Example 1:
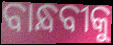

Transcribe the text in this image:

ବାନ୍ଧବୀକୁ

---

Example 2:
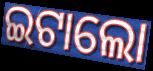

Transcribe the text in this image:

ଇଟାଲୋ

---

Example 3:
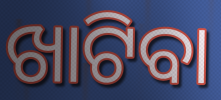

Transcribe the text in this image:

ଖାଟିବା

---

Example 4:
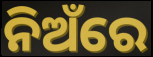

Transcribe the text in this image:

ନିଅଁରେ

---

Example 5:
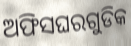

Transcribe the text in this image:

ଅଫିସଘରଗୁଡିକ